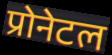
प्रोनेटल